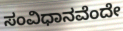
ಸಂವಿಧಾನವೆಂದೇ